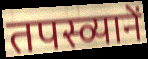
तपस्व्यानें